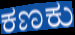
ಕಣಕು